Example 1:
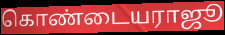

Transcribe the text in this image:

கொண்டையராஜூ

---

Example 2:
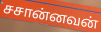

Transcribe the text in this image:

சசான்னவன்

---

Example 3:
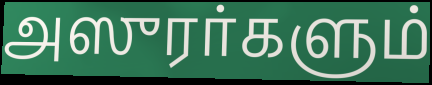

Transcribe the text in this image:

அஸுரர்களும்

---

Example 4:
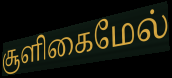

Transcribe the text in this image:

சூளிகைமேல்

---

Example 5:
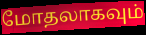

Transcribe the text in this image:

மோதலாகவும்